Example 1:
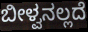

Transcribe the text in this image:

ಬೀಳ್ವನಲ್ಲದೆ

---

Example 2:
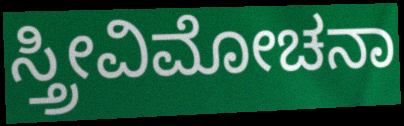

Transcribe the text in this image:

ಸ್ತ್ರೀವಿಮೋಚನಾ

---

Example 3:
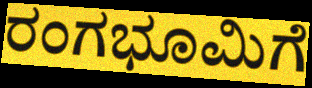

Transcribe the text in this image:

ರಂಗಭೂಮಿಗೆ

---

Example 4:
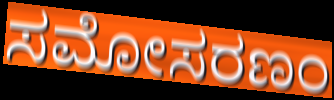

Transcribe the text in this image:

ಸಮೋಸರಣಂ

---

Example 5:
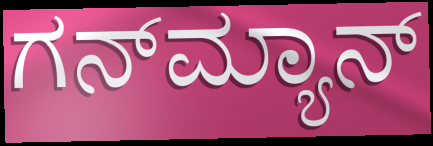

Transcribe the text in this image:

ಗನ್‌ಮ್ಯಾನ್